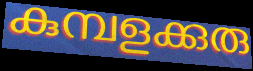
കുമ്പളക്കുരു